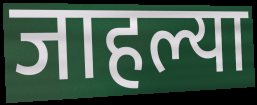
जाहल्या